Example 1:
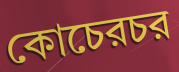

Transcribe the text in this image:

কোচেরচর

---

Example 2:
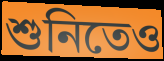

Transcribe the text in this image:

শুনিতেও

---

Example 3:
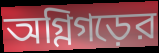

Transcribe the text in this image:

অগ্নিগড়ের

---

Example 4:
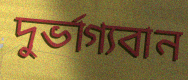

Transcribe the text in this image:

দুর্ভাগ্যবান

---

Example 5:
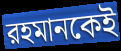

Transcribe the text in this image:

রহমানকেই